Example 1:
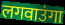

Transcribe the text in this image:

लगवाउंगा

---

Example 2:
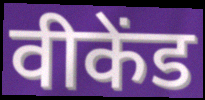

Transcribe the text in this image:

वीकेंड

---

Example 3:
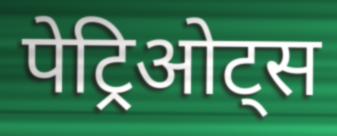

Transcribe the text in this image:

पेट्रिओट्स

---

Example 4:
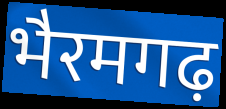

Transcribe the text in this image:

भैरमगढ़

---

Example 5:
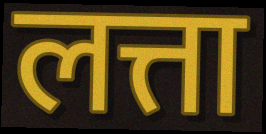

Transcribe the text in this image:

लत्ता